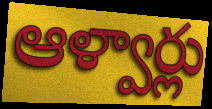
ఆళ్వార్లు